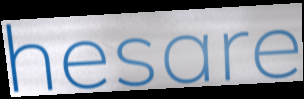
hesare